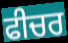
ਫੀਚਰ